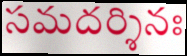
సమదర్శినః